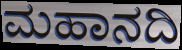
ಮಹಾನದಿ